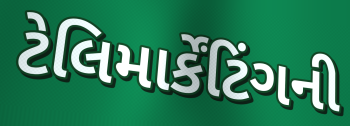
ટેલિમાર્કેંટિંગની